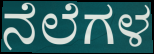
ನೆಲೆಗಳ